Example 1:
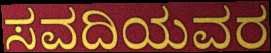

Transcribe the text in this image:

ಸವದಿಯವರ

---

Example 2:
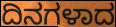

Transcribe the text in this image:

ದಿನಗಳಾದ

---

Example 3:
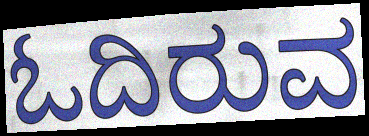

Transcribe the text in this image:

ಓದಿರುವ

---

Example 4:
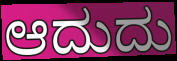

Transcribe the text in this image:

ಆದುದು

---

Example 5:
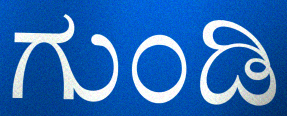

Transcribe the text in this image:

ಗುಂಡಿ